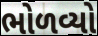
ભોળવ્યો